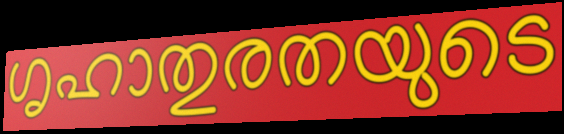
ഗൃഹാതുരതയുടെ